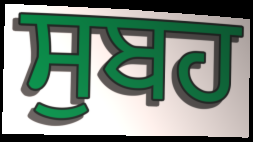
ਸੁਬਹ